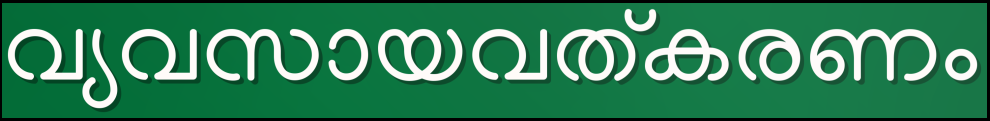
വ്യവസായവത്കരണം